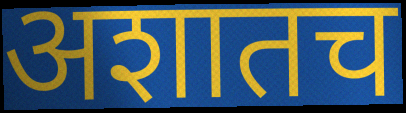
अशातच